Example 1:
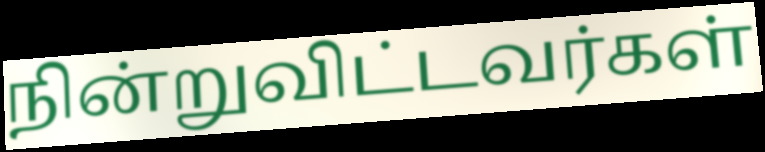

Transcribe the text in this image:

நின்றுவிட்டவர்கள்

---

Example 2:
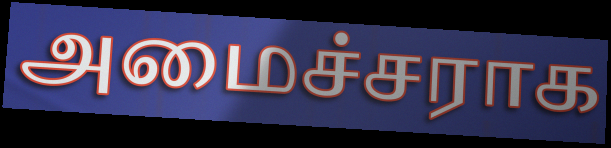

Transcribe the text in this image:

அமைச்சராக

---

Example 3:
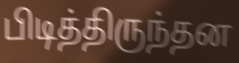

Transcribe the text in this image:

பிடித்திருந்தன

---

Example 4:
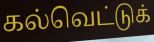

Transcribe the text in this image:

கல்வெட்டுக்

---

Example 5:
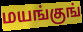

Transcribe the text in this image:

மயங்குங்